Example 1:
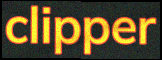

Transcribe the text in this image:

clipper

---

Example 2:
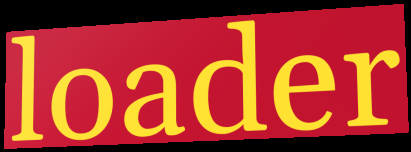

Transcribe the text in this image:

loader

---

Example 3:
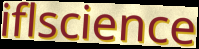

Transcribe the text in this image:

iflscience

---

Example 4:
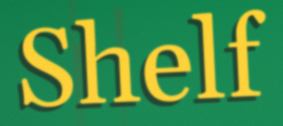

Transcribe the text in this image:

Shelf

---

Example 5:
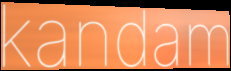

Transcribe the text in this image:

kandam